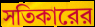
সতিকারের